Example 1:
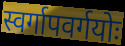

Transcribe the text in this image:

स्वर्गापवर्गयोः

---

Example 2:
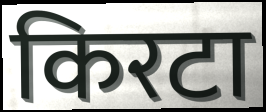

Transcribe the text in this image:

किरटा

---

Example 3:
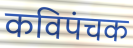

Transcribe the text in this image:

कविपंचक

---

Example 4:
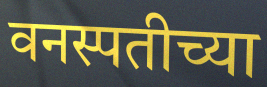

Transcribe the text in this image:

वनस्पतीच्या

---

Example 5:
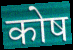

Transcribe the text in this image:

कोष